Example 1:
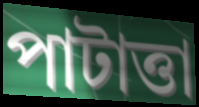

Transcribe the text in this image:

পাটাত্তা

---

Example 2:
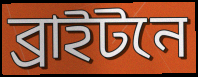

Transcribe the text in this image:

ব্রাইটনে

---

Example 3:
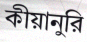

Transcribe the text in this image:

কীয়ানুরি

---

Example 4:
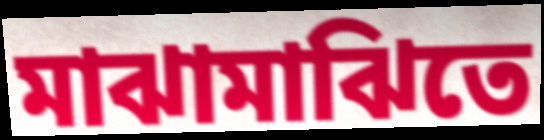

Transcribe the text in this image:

মাঝামাঝিতে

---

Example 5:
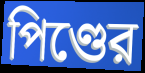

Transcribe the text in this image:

পিণ্ডের